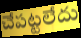
చేపట్టలేదు